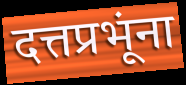
दत्तप्रभूंना